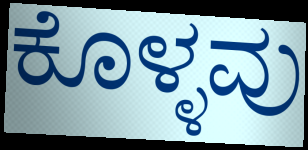
ಕೊಳ್ಳವು